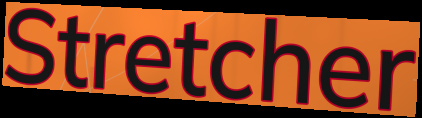
Stretcher